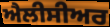
ਐਲੀਸੀਅਰ